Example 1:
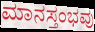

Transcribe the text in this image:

ಮಾನಸ್ತಂಭವು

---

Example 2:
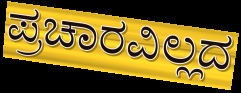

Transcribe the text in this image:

ಪ್ರಚಾರವಿಲ್ಲದ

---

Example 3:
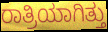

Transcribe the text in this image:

ರಾತ್ರಿಯಾಗಿತ್ತು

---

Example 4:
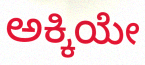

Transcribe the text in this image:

ಅಕ್ಕಿಯೇ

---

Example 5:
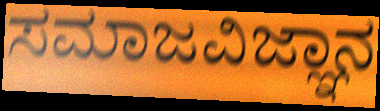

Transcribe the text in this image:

ಸಮಾಜವಿಜ್ಞಾನ